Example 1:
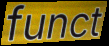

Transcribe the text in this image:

funct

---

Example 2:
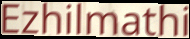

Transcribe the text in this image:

Ezhilmathi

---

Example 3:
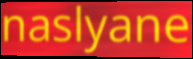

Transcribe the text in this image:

naslyane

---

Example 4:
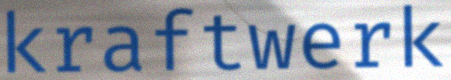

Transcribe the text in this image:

kraftwerk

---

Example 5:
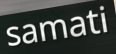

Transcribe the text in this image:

samati